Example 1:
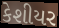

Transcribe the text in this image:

કેશીયર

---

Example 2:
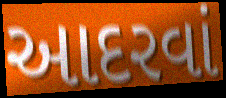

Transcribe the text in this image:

આદરવાં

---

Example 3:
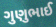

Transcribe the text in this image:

ગુણુભાઈ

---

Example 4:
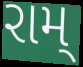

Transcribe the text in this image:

રામ્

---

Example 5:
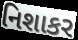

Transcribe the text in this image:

નિશાકર